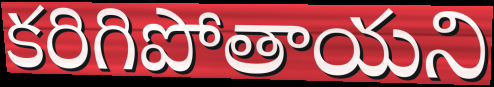
కరిగిపోతాయని